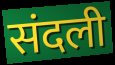
संदली